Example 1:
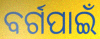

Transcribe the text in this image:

ବର୍ଗପାଇଁ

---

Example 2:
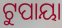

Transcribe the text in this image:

ଟୁପାୟା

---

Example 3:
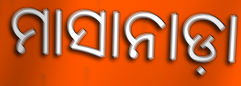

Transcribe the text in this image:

ମାସାନାଡ଼ା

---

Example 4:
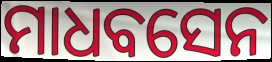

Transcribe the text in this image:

ମାଧବସେନ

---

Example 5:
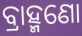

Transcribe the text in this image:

ବ୍ରାହ୍ମଣୋ